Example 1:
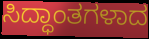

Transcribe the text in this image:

ಸಿದ್ಧಾಂತಗಳಾದ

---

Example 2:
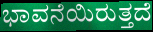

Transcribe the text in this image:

ಭಾವನೆಯಿರುತ್ತದೆ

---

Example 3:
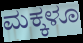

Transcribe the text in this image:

ಮಕ್ಕಳೂ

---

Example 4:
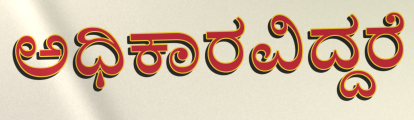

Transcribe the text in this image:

ಅಧಿಕಾರವಿದ್ದರೆ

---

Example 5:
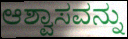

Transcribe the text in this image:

ಆಶ್ವಾಸವನ್ನು